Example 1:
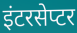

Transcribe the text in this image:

इंटरसेप्टर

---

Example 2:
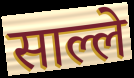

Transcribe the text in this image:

साल्ले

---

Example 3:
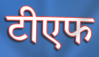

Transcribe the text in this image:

टीएफ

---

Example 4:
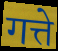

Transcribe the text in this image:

गत्ते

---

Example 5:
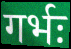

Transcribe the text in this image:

गर्भः